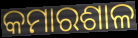
କମାରଶାଳ